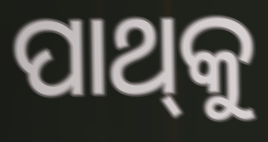
ପାଥ୍‌କୁ